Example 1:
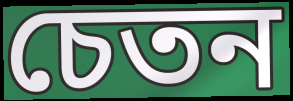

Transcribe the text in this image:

চেতন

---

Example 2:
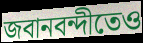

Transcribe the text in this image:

জবানবন্দীতেও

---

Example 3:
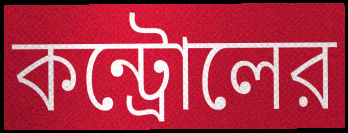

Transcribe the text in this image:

কন্ট্রোলের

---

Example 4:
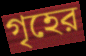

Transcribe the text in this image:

গৃহের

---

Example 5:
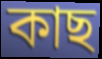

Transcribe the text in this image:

কাছ